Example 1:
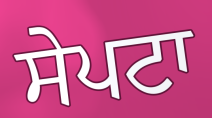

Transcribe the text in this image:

ਸੇਪਟਾ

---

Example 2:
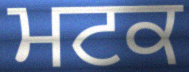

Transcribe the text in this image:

ਮਟਕ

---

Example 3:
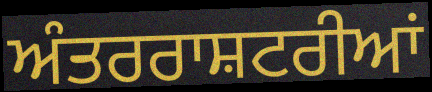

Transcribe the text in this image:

ਅੰਤਰਰਾਸ਼ਟਰੀਆਂ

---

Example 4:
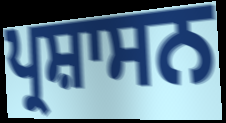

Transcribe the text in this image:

ਪ੍ਰਸ਼ਾਸਨ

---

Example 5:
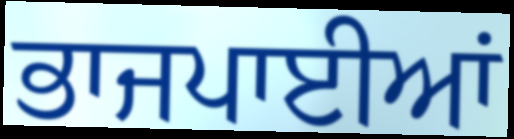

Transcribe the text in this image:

ਭਾਜਪਾਈਆਂ